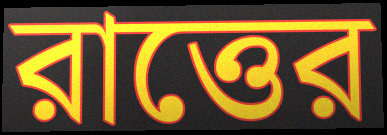
রাত্তের